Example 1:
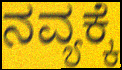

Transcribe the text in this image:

ನವ್ಯಕ್ಕೆ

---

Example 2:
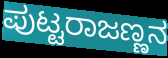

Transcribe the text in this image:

ಪುಟ್ಟರಾಜಣ್ಣನ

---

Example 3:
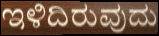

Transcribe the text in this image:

ಇಳಿದಿರುವುದು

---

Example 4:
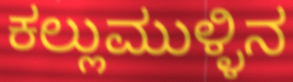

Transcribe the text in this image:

ಕಲ್ಲುಮುಳ್ಳಿನ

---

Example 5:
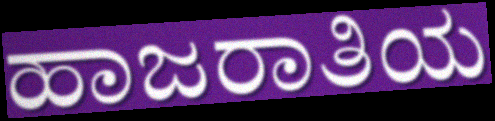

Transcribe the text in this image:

ಹಾಜರಾತಿಯ